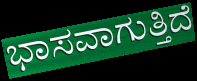
ಭಾಸವಾಗುತ್ತಿದೆ